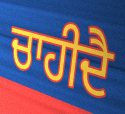
ਚਾਹੀਦੈ